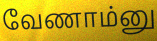
வேணாம்னு